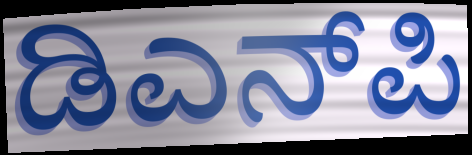
ಡಿಎನ್‌ಪಿ